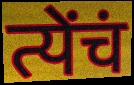
त्येंचं